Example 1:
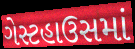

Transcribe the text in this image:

ગેસ્ટહાઉસમાં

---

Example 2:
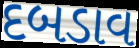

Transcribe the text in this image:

દબડાવ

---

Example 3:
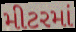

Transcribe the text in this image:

મીટરમાં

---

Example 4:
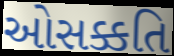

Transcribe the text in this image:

ઓસક્કતિ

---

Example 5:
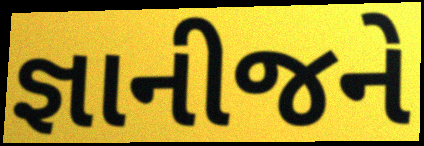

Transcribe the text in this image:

જ્ઞાનીજને